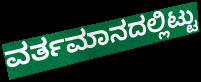
ವರ್ತಮಾನದಲ್ಲಿಟ್ಟು